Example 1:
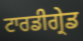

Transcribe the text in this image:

ਟਾਰਡੀਗ੍ਰੇਡ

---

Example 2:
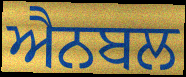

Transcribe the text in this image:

ਐਨਬਲ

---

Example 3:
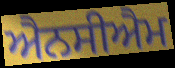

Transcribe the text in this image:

ਐਨਸੀਐਮ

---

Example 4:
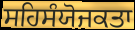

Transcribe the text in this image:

ਸਹਿਸੰਯੋਜਕਤਾ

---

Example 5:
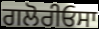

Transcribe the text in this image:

ਗਲੋਰੀਓਸਾ